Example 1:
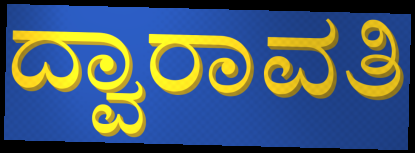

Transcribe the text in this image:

ದ್ವಾರಾವತಿ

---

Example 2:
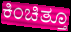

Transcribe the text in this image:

ಕಿಂಚಿತ್ತೂ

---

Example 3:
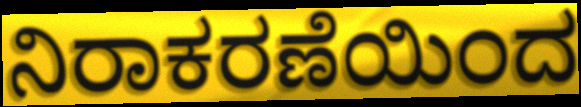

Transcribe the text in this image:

ನಿರಾಕರಣೆಯಿಂದ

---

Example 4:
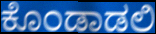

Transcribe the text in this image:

ಕೊಂಡಾಡಲಿ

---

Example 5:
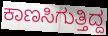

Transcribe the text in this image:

ಕಾಣಸಿಗುತ್ತಿದ್ದ